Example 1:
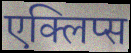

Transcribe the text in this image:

एक्लिप्स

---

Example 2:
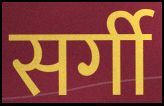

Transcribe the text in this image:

सर्गी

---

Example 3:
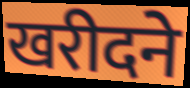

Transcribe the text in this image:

खरीदने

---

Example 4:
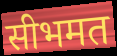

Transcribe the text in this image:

सीभमत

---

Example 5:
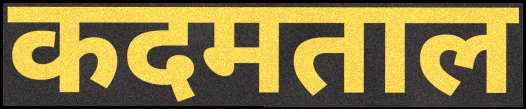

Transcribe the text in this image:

कदमताल